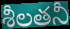
శీలతనీ